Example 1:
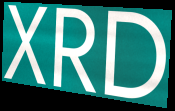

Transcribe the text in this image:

XRD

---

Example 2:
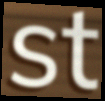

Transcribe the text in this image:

st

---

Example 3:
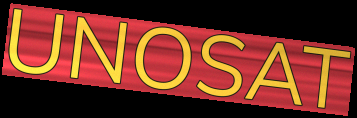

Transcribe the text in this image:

UNOSAT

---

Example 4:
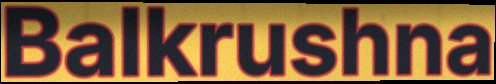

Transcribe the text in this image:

Balkrushna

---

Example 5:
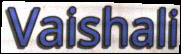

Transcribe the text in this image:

Vaishali